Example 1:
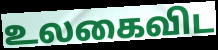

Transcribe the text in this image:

உலகைவிட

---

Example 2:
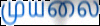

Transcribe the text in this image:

முயலை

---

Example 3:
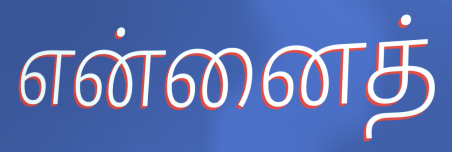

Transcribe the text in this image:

என்னைத்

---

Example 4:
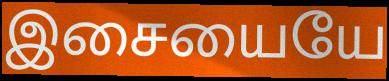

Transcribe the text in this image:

இசையையே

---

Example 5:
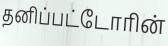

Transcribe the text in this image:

தனிப்பட்டோரின்